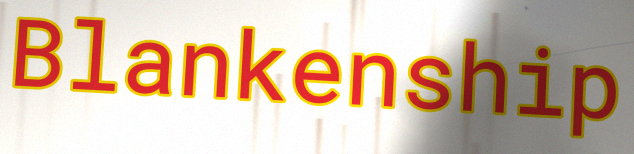
Blankenship